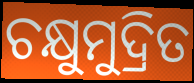
ଚକ୍ଷୁମୁଦ୍ରିତ